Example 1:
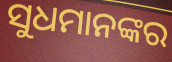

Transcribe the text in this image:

ସୁଧମାନଙ୍କର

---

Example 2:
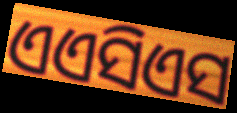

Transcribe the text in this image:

ଏଏସିଏସ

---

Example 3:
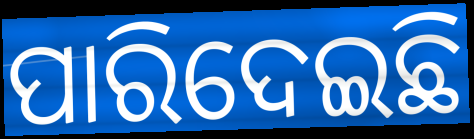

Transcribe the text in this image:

ପାରିଦେଇଛି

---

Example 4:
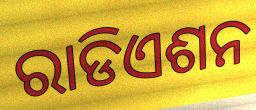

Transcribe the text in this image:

ରାଡିଏଶନ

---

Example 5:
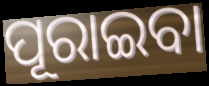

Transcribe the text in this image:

ପୂରାଇବା